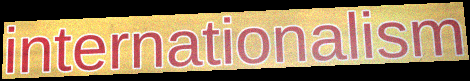
internationalism